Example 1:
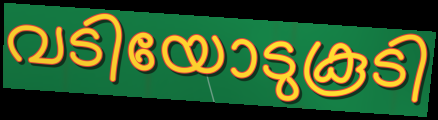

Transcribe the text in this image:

വടിയോടുകൂടി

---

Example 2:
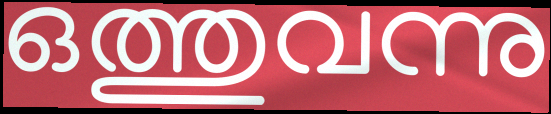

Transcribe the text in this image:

ഒത്തുവന്നു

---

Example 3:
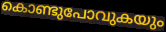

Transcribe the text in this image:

കൊണ്ടുപോവുകയും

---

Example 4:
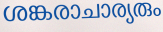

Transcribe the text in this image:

ശങ്കരാചാര്യരും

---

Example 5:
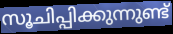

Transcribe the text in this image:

സൂചിപ്പിക്കുന്നുണ്ട്